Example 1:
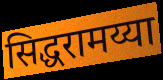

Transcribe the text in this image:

सिद्धरामय्या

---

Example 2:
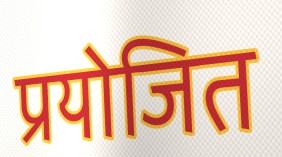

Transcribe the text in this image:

प्रयोजित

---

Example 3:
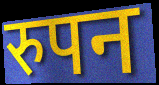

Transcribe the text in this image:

रुपन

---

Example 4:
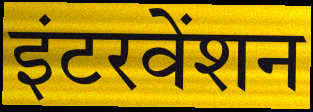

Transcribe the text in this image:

इंटरवेंशन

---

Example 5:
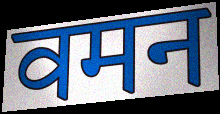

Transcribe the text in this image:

वमन